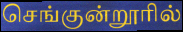
செங்குன்றூரில்